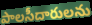
పాలసీదారులను